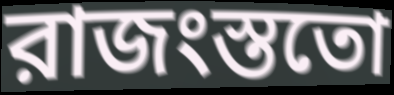
রাজংস্ততো